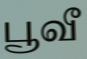
பூவீ